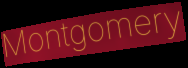
Montgomery